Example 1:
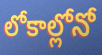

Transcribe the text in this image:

లోకాల్లోనో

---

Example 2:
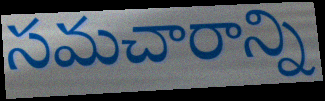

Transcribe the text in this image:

సమచారాన్ని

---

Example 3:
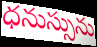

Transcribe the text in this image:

ధనుస్సును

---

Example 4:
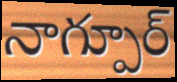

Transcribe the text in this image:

నాగ్పూర్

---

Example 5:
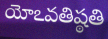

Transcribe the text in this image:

యోఽవతిష్ఠతి